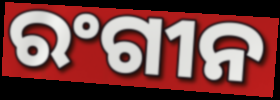
ରଂଗୀନ